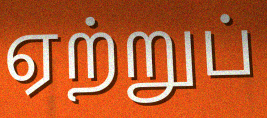
ஏற்றுப்